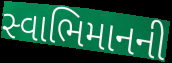
સ્વાભિમાનની